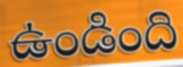
ఉండింది